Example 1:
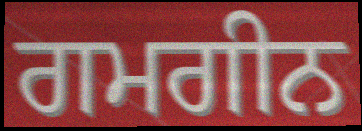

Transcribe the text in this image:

ਗਮਗੀਨ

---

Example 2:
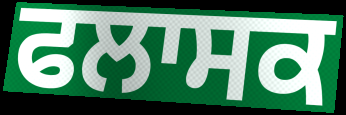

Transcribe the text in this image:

ਫਲਾਸਕ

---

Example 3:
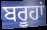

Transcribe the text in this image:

ਬਰੂਹਾਂ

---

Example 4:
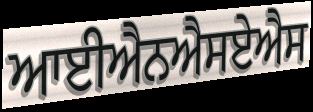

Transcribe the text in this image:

ਆਈਐਨਐਸਏਐਸ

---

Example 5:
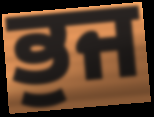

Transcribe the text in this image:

ਭੁਜ